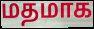
மதமாக